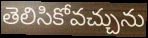
తెలిసికోవచ్చును